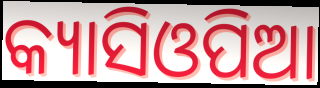
କ୍ୟାସିଓପିଆ